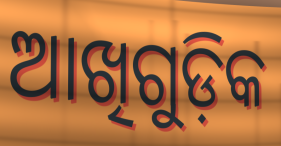
ଆଖିଗୁଡ଼ିକ